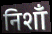
निशाँ